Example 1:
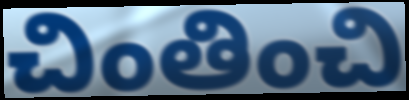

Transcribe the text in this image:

చింతించి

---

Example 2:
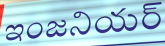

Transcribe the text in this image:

ఇంజనియర్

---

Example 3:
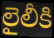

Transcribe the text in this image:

లైలీకి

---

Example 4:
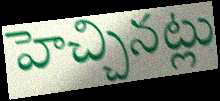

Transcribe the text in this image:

హెచ్చినట్లు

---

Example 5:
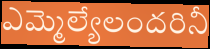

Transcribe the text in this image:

ఎమ్మెల్యేలందరినీ